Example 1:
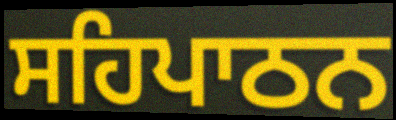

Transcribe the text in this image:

ਸਹਿਪਾਠਨ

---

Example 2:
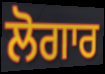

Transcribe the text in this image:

ਲੋਗਾਰ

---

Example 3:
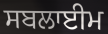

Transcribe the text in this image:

ਸਬਲਾਈਮ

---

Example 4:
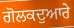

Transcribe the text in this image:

ਗੋਲਕਦੁਆਰੇ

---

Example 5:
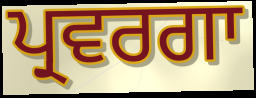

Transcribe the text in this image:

ਪ੍ਰਵਰਗਾ